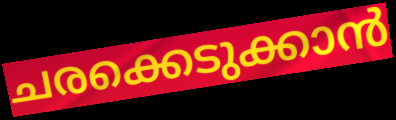
ചരക്കെടുക്കാൻ